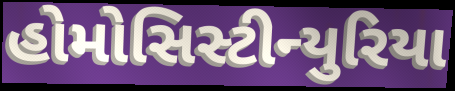
હોમોસિસ્ટીન્યુરિયા